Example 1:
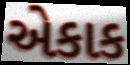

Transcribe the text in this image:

એકાક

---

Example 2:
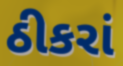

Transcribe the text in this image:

ઠીકરાં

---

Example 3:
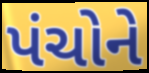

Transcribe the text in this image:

પંચોને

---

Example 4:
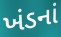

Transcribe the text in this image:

ખંડનાં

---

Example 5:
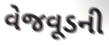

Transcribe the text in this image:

વેજવૂડની